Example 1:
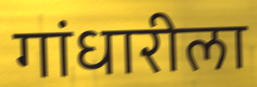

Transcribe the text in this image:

गांधारीला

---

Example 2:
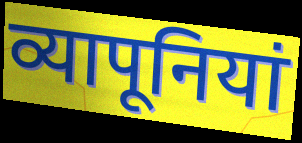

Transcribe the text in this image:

व्यापूनियां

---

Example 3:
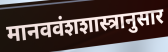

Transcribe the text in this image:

मानववंशशास्त्रानुसार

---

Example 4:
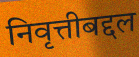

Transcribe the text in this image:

निवृत्तीबद्दल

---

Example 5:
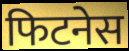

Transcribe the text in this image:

फिटनेस